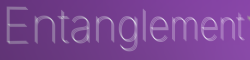
Entanglement